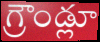
గ్రౌండ్లూ